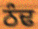
ਠੰਢ